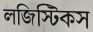
লজিস্টিকস